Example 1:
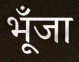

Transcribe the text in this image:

भूँजा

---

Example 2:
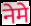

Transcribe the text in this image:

नेमे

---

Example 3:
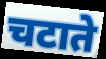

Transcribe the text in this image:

चटाते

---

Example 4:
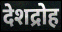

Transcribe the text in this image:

देशद्रोह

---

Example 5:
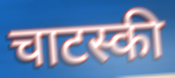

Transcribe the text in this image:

चाटस्की